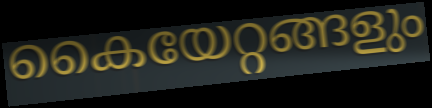
കൈയേറ്റങ്ങളും